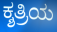
ಕ್ಶತ್ರಿಯ